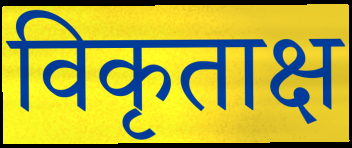
विकृताक्ष